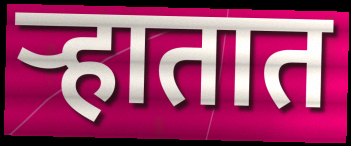
ऱ्हातात